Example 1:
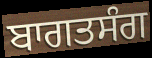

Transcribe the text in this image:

ਬਾਗਤਸੰਗ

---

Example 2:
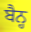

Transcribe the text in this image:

ਬੈਨ੍ਹ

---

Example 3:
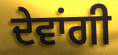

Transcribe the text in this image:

ਦੇਵਾਂਗੀ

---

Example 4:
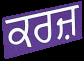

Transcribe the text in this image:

ਕਰਜ਼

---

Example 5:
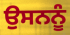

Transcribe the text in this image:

ਉਸਨਨੂੰ